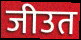
जीउत